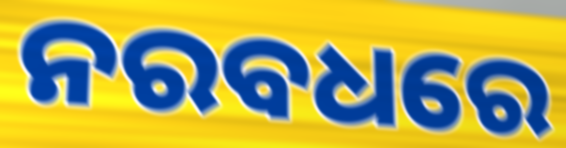
ନରବଧରେ